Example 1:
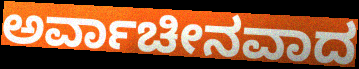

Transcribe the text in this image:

ಅರ್ವಾಚೀನವಾದ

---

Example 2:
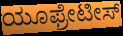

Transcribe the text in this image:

ಯೂಫ್ರೇಟೀಸ್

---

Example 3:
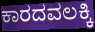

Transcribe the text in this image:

ಕಾರದವಲಕ್ಕಿ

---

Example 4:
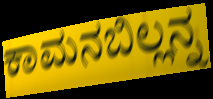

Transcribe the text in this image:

ಕಾಮನಬಿಲ್ಲನ್ನ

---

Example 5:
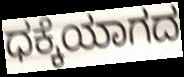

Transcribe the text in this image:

ಧಕ್ಕೆಯಾಗದ